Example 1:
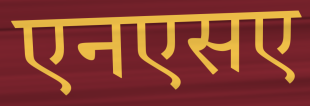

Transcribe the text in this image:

एनएसए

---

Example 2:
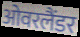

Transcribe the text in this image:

ओवरलैंडर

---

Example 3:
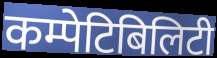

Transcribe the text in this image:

कम्पेटिबिलिटी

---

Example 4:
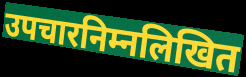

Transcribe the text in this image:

उपचारनिम्नलिखित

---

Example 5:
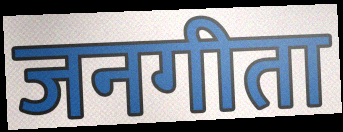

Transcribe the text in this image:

जनगीता